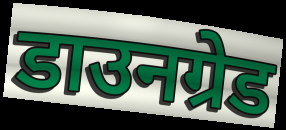
डाउनग्रेड